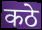
कठे